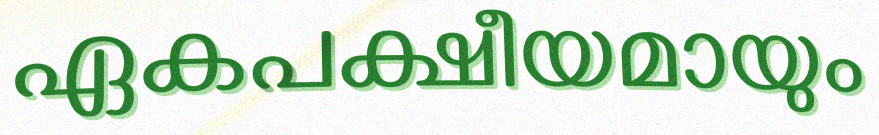
ഏകപക്ഷീയമായും